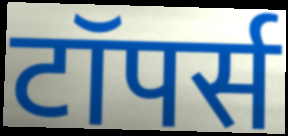
टॉपर्स